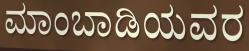
ಮಾಂಬಾಡಿಯವರ